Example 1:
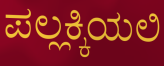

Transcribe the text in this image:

ಪಲ್ಲಕ್ಕಿಯಲಿ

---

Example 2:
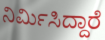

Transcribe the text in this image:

ನಿರ್ಮಿಸಿದ್ದಾರೆ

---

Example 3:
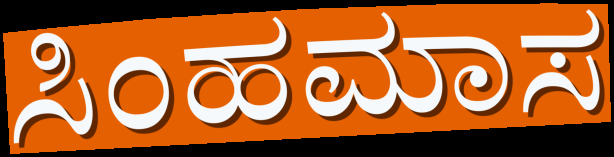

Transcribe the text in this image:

ಸಿಂಹಮಾಸ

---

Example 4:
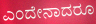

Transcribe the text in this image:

ಎಂದೇನಾದರೂ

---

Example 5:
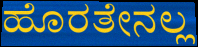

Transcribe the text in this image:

ಹೊರತೇನಲ್ಲ